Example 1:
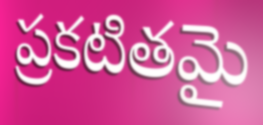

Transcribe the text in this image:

ప్రకటితమై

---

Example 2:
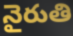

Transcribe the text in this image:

నైరుతి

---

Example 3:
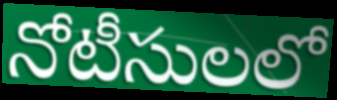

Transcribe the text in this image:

నోటీసులలో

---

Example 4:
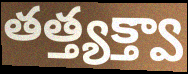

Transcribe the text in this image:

తత్త్యక్త్వా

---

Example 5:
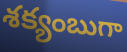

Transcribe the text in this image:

శక్యంబుగా